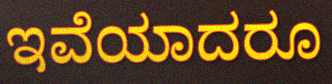
ಇವೆಯಾದರೂ